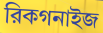
রিকগনাইজ